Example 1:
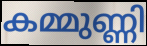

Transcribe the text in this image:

കമ്മുണ്ണി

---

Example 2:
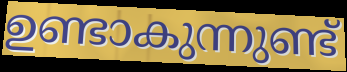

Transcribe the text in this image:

ഉണ്ടാകുന്നുണ്ട്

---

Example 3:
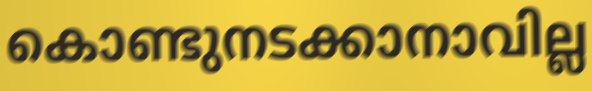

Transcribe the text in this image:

കൊണ്ടുനടക്കാനാവില്ല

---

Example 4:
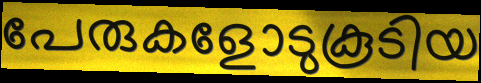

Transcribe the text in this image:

പേരുകളോടുകൂടിയ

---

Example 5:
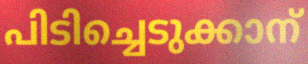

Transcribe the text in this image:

പിടിച്ചെടുക്കാന്